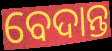
ବେଦାନ୍ତ